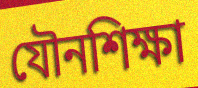
যৌনশিক্ষা